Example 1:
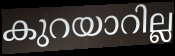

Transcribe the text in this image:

കുറയാറില്ല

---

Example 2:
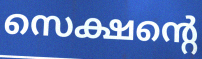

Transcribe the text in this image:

സെക്ഷന്റെ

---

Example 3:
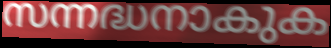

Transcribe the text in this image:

സന്നദ്ധനാകുക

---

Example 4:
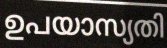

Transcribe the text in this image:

ഉപയാസ്യതി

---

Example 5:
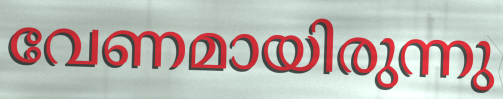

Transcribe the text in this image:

വേണമായിരുന്നു